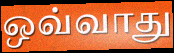
ஒவ்வாது